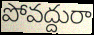
పోవద్దురా